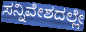
ಸನ್ನಿವೇಶದಲ್ಲೇ